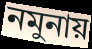
নমুনায়